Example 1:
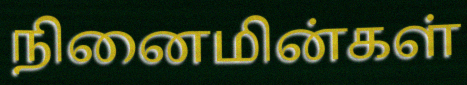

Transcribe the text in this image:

நினைமின்கள்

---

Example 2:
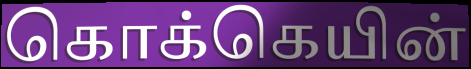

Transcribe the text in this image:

கொக்கெயின்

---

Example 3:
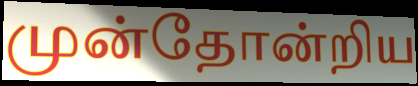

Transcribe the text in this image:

முன்தோன்றிய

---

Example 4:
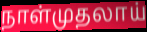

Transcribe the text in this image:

நாள்முதலாய்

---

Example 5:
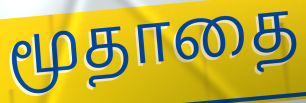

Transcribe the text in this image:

மூதாதை